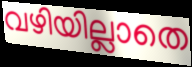
വഴിയില്ലാതെ